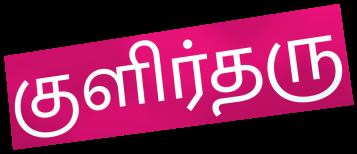
குளிர்தரு